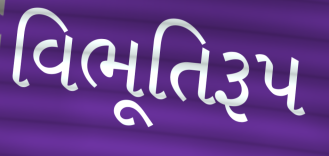
વિભૂતિરૂપ